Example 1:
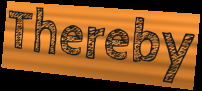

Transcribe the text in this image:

Thereby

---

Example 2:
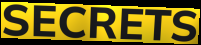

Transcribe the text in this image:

SECRETS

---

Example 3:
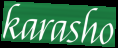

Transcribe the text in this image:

karasho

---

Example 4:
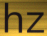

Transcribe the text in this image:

hz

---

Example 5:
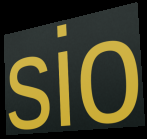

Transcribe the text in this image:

sio